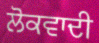
ਲੋਕਵਾਦੀ